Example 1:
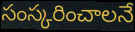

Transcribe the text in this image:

సంస్కరించాలనే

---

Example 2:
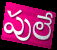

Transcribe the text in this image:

పులే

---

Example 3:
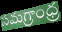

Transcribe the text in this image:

సమగ్రాంధ్ర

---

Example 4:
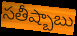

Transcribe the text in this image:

సతీష్బాబు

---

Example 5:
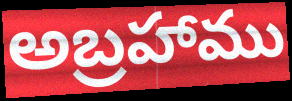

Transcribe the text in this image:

అబ్రహాము